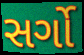
સર્ગો